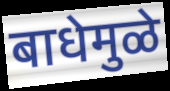
बाधेमुळे